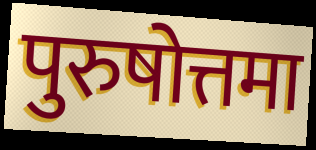
पुरुषोत्तमा